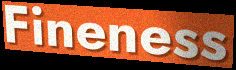
Fineness